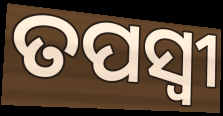
ତପସ୍ବୀ